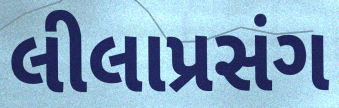
લીલાપ્રસંગ